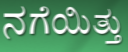
ನಗೆಯಿತ್ತು